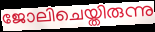
ജോലിചെയ്തിരുന്നു